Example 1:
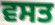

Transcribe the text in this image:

ਵਸਤ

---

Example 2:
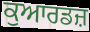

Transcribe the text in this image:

ਕੁਆਰਡਜ਼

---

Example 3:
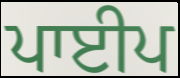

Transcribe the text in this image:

ਪਾਈਪ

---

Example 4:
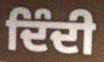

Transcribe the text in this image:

ਦਿੰਦੀ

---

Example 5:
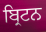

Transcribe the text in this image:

ਬ੍ਰਿਟਨ